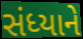
સંધ્યાને